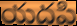
యదపి